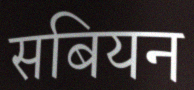
सबियन